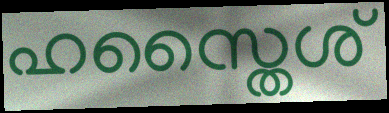
ഹസ്തൈശ്